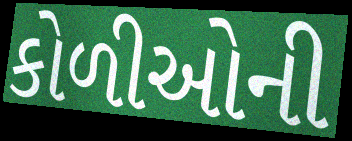
કોળીઓની